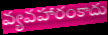
వ్యవహారంకాదు